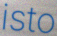
isto